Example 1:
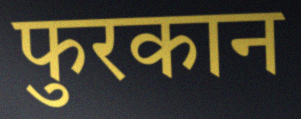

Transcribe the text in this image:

फुरकान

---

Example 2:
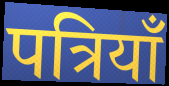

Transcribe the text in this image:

पत्रियाँ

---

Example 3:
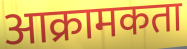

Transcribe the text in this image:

आक्रामकता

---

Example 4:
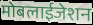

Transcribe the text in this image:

मोबलाईजेशन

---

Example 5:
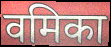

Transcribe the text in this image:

वमिका